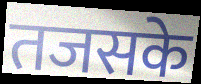
तजसके